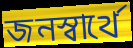
জনস্বার্থে